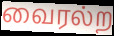
வைரல்ற